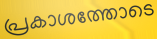
പ്രകാശത്തോടെ